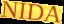
NIDA